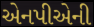
એનપીએની